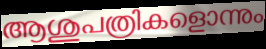
ആശുപത്രികളൊന്നും